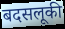
बदसलूकी